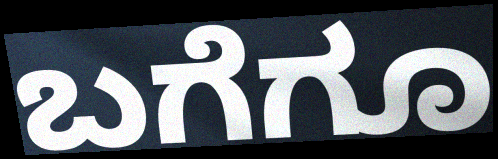
ಬಗೆಗೂ